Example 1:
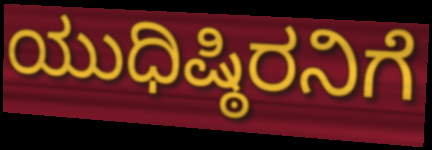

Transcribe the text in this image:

ಯುಧಿಷ್ಠಿರನಿಗೆ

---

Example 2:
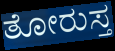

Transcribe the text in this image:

ತೋರುಸ್ತ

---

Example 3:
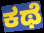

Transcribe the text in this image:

ಕಥೆ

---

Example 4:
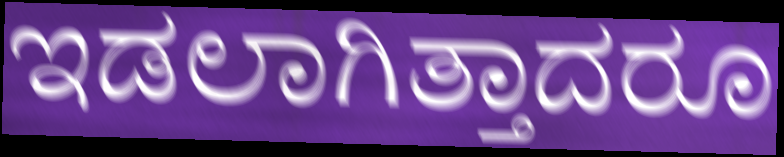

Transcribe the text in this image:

ಇಡಲಾಗಿತ್ತಾದರೂ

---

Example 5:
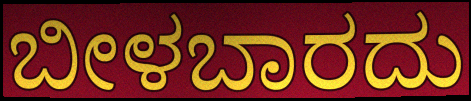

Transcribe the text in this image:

ಬೀಳಬಾರದು